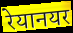
रेयानयर